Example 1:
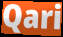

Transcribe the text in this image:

Qari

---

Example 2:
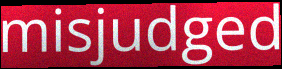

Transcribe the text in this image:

misjudged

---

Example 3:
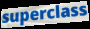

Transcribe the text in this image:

superclass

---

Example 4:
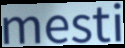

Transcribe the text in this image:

mesti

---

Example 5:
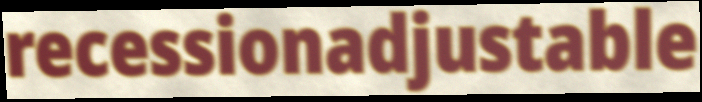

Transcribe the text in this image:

recessionadjustable